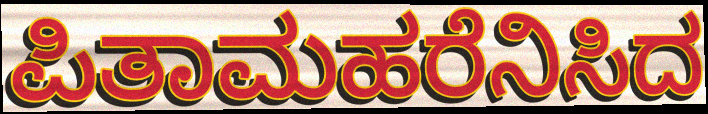
ಪಿತಾಮಹರೆನಿಸಿದ